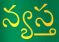
న్యస్త